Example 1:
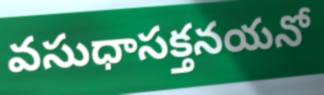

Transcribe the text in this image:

వసుధాసక్తనయనో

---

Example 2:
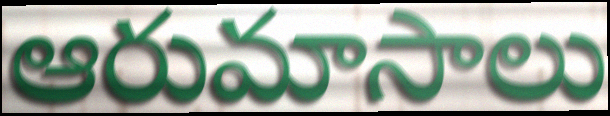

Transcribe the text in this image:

ఆరుమాసాలు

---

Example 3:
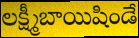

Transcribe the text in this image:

లక్ష్మీబాయిషిండే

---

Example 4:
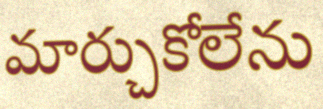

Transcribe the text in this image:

మార్చుకోలేను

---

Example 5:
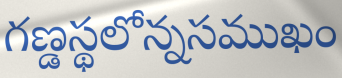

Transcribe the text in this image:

గణ్డస్థలోన్నసముఖం